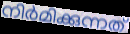
നിർമിക്കുന്നത്